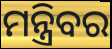
ମନ୍ତ୍ରିବର